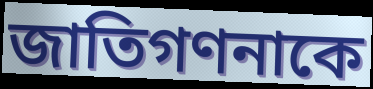
জাতিগণনাকে